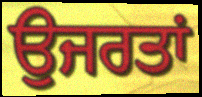
ਉਜਰਤਾਂ